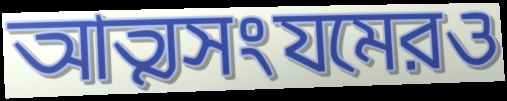
আত্মসংযমেরও